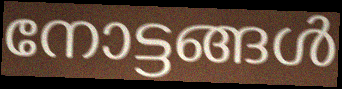
നോട്ടങ്ങൾ